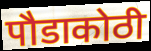
पौडाकोठी